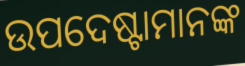
ଉପଦେଷ୍ଟାମାନଙ୍କ